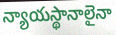
న్యాయస్థానాలైనా